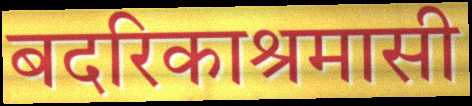
बदरिकाश्रमासी